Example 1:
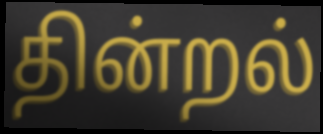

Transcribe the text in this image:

தின்றல்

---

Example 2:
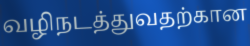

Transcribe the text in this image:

வழிநடத்துவதற்கான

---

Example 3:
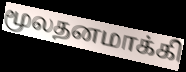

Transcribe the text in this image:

மூலதனமாக்கி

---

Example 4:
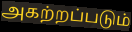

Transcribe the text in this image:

அகற்றப்படும்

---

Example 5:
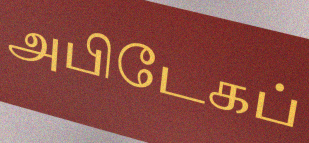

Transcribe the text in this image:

அபிடேகப்